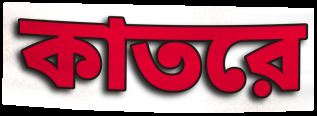
কাতরে